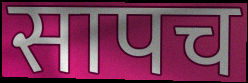
सापच